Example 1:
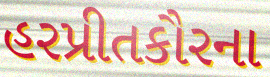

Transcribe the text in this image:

હરપ્રીતકૌરના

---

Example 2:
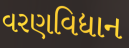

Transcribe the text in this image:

વરણવિદ્યાન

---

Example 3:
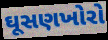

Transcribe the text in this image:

ઘૂસણખોરો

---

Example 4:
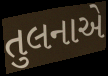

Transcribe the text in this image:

તુલનાએ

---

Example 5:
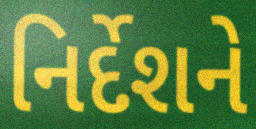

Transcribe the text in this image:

નિર્દેશને